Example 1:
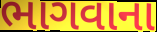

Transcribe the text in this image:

ભાગવાના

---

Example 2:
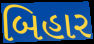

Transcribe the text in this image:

બિહાર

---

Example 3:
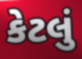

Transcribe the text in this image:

કેટલું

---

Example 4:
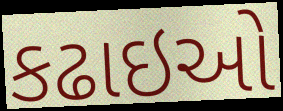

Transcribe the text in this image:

કઢાઇઓ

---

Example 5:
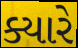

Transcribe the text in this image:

ક્યારે